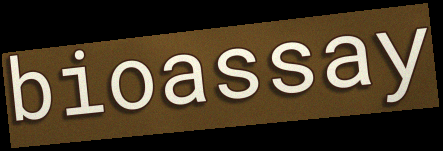
bioassay